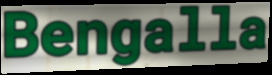
Bengalla